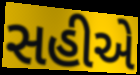
સહીએ